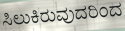
ಸಿಲುಕಿರುವುದರಿಂದ